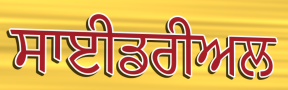
ਸਾਈਡਰੀਅਲ